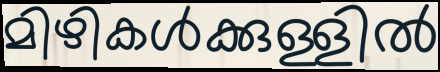
മിഴികൾക്കുള്ളിൽ